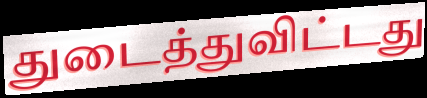
துடைத்துவிட்டது